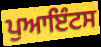
ਪੁਆਇੰਟਸ